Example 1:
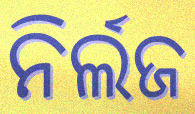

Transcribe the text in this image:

ନିର୍ଲଜ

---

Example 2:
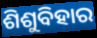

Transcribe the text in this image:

ଶିଶୁବିହାର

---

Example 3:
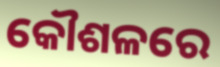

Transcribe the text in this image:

କୌଶଳରେ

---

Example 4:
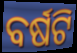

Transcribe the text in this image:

ବର୍ଷଟି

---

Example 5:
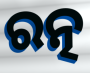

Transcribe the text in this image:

ରତ୍ନ